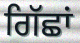
ਗਿੱਛਾਂ